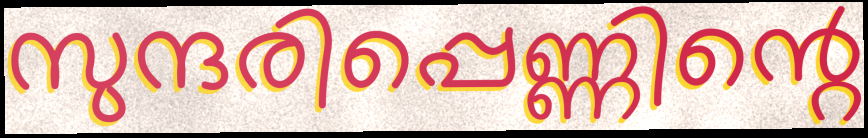
സുന്ദരിപ്പെണ്ണിന്റെ